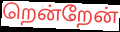
றென்றேன்